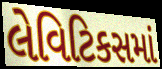
લેવિટિકસમાં